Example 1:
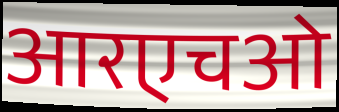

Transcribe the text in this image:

आरएचओ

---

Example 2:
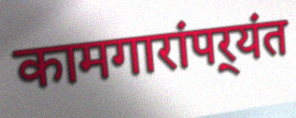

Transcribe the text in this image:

कामगारांपर्यंत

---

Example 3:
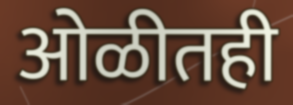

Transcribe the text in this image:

ओळीतही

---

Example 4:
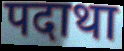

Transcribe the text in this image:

पदाथा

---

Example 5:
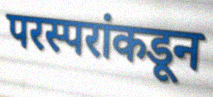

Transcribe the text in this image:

परस्परांकडून